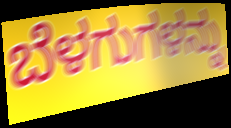
ಬೆಳಗುಗಳನ್ನು